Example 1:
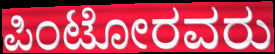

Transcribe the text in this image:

ಪಿಂಟೋರವರು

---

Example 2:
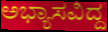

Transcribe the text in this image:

ಅಭ್ಯಾಸವಿದ್ದ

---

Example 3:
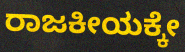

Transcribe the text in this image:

ರಾಜಕೀಯಕ್ಕೇ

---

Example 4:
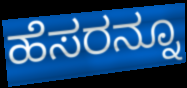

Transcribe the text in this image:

ಹೆಸರನ್ನೂ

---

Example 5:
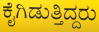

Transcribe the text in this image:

ಕೈಗಿಡುತ್ತಿದ್ದರು